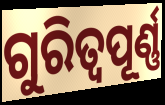
ଗୁରିତ୍ୱପୂର୍ଣ୍ଣ